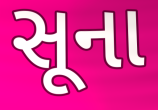
સૂના